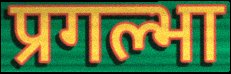
प्रगल्भा